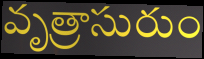
వృత్రాసురుం